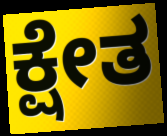
ಕ್ಷೇತ